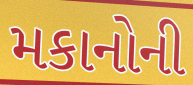
મકાનોની